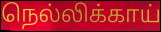
நெல்லிக்காய்